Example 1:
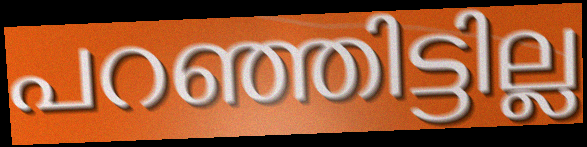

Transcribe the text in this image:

പറഞ്ഞിട്ടില്ല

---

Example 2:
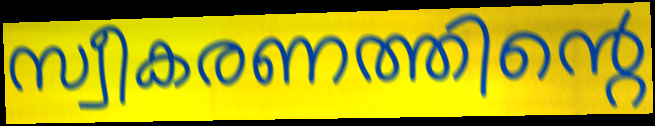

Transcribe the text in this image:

സ്വീകരണത്തിന്റെ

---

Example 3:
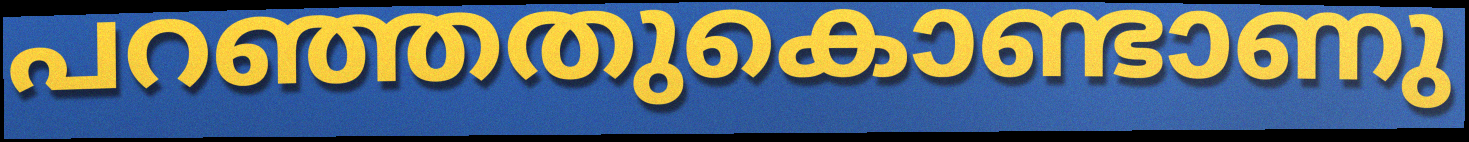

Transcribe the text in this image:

പറഞ്ഞതുകൊണ്ടാണു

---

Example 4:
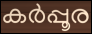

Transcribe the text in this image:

കർപ്പൂര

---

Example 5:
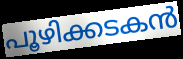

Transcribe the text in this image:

പൂഴിക്കടകൻ